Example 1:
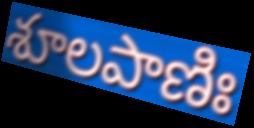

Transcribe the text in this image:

శూలపాణిః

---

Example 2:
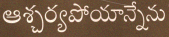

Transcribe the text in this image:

ఆశ్చర్యపోయాన్నేను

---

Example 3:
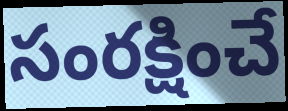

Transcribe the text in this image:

సంరక్షించే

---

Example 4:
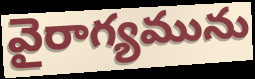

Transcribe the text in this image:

వైరాగ్యమును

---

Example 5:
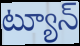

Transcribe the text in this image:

ట్యూన్